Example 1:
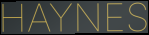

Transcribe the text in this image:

HAYNES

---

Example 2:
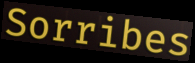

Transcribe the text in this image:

Sorribes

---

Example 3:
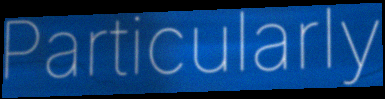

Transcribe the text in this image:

Particularly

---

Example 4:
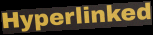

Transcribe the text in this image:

Hyperlinked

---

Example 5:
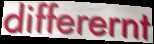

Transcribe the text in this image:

differernt